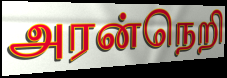
அரன்நெறி